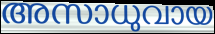
അസാധുവായ